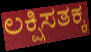
ಲಕ್ಷಿಸತಕ್ಕ